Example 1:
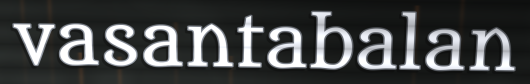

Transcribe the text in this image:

vasantabalan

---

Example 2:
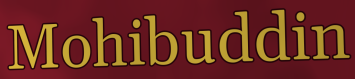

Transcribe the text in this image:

Mohibuddin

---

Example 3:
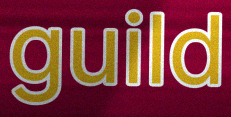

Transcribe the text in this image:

guild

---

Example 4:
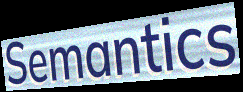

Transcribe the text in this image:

Semantics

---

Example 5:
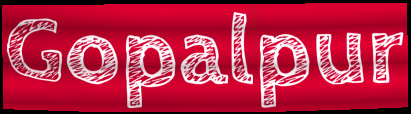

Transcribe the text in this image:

Gopalpur